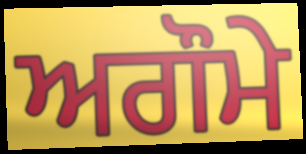
ਅਗੌਮੇ